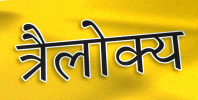
त्रैलोक्य